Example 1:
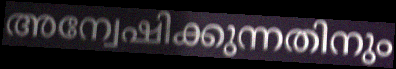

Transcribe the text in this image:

അന്വേഷിക്കുന്നതിനും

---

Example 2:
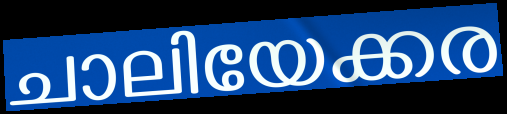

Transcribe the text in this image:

ചാലിയേക്കര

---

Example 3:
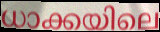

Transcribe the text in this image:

ധാക്കയിലെ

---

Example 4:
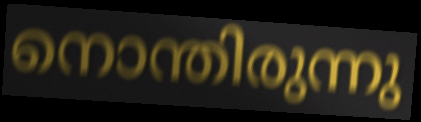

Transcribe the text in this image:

നൊന്തിരുന്നു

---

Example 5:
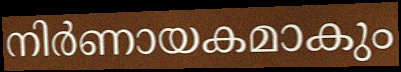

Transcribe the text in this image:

നിർണായകമാകും